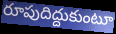
రూపుదిద్దుకుంటూ